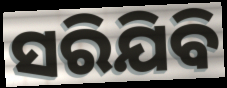
ସରିଯିବି